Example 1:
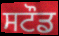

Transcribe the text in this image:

ਸਟੌਡ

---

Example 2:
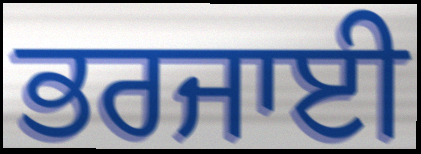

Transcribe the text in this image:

ਭਰਜਾਈ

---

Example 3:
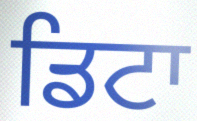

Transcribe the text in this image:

ਡਿਟਾ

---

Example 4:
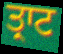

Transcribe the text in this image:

ਤ੍ਰਾਟ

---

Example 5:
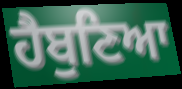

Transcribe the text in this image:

ਹੈਬੁਣਿਆ